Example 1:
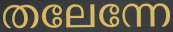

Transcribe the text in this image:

തലേന്നേ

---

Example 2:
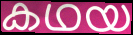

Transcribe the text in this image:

കഥയ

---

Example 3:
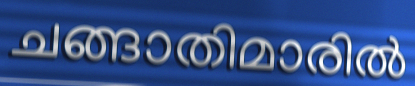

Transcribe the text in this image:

ചങ്ങാതിമാരിൽ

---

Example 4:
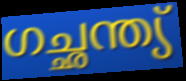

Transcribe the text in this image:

ഗച്ഛന്ത്യ്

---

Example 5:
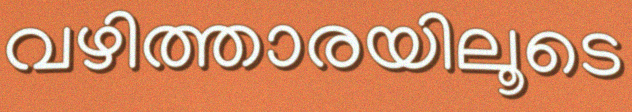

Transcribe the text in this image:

വഴിത്താരയിലൂടെ